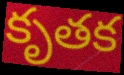
కృతక